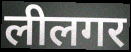
लीलगर